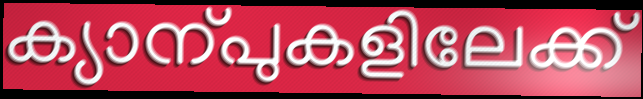
ക്യാന്പുകളിലേക്ക്